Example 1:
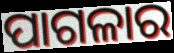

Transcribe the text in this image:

ପାଗଳାର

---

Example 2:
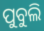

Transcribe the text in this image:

ପୁବୁଲି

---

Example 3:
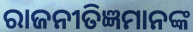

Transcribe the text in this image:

ରାଜନୀତିଜ୍ଞମାନଙ୍କ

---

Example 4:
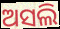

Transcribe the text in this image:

ଅସଲି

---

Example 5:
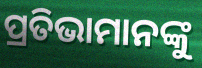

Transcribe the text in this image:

ପ୍ରତିଭାମାନଙ୍କୁ